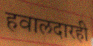
हवालदारही